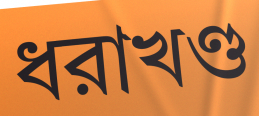
ধরাখণ্ড